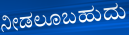
ನೀಡಲೂಬಹುದು